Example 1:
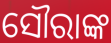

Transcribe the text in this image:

ସୌରାଙ୍କ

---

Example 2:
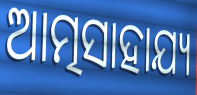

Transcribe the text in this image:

ଆତ୍ମସାହାଯ୍ୟ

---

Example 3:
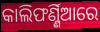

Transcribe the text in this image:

କାଲିଫର୍ଣ୍ଣିଆରେ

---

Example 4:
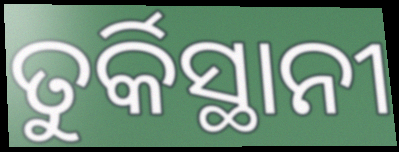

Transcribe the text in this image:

ତୁର୍କିସ୍ଥାନୀ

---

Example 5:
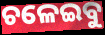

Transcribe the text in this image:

ଚଳେଇବୁ